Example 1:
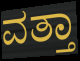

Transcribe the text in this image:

ವತ್ತಾ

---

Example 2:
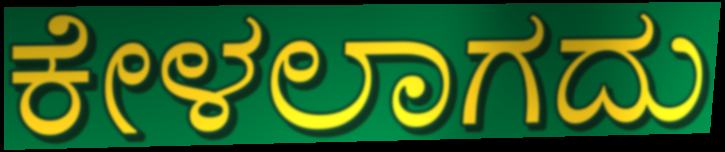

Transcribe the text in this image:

ಕೇಳಲಾಗದು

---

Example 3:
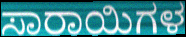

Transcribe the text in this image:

ಸಾರಾಯಿಗಳ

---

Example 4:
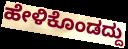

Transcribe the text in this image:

ಹೇಳಿಕೊಂಡದ್ದು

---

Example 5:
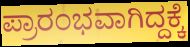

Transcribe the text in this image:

ಪ್ರಾರಂಭವಾಗಿದ್ದಕ್ಕೆ